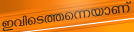
ഇവിടെത്തന്നെയാണ്